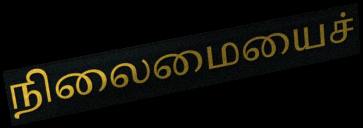
நிலைமையைச்